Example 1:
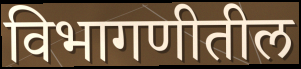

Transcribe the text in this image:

विभागणीतील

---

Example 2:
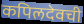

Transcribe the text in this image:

कपिलदेवची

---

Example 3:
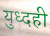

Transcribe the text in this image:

युध्दही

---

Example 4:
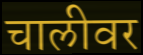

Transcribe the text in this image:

चालीवर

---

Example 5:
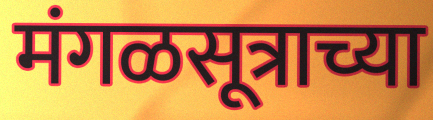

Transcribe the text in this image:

मंगळसूत्राच्या